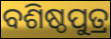
ବଶିଷ୍ଠପୁତ୍ର